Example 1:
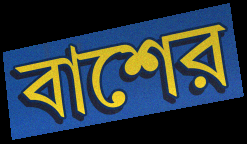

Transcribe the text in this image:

বাশের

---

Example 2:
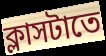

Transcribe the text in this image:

ক্লাসটাতে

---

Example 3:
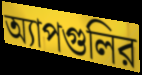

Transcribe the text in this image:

অ্যাপগুলির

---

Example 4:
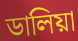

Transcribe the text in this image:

ডালিয়া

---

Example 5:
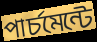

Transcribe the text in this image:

পার্চমেন্টে